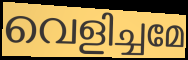
വെളിച്ചമേ